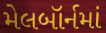
મેલબૉર્નમાં